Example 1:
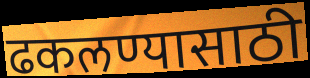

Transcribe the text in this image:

ढकलण्यासाठी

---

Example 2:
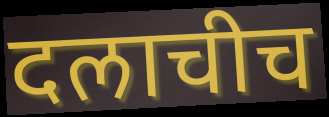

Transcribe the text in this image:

दलाचीच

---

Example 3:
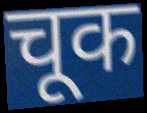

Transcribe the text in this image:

चूक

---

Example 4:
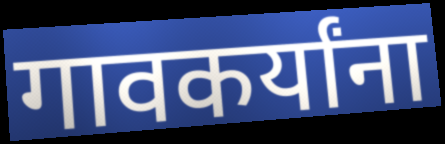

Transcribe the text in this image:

गावकर्यांना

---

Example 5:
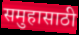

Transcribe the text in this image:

समुहासाठी